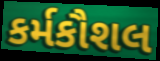
કર્મકૌશલ